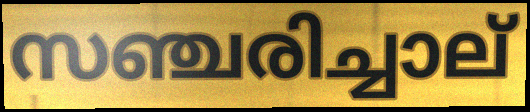
സഞ്ചരിച്ചാല്